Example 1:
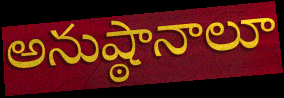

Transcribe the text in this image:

అనుష్ఠానాలూ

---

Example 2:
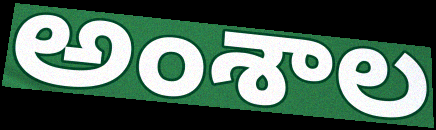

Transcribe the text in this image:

అంశాల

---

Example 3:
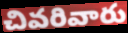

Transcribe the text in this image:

చివరివారు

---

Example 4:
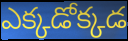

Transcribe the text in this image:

ఎక్కడోక్కడ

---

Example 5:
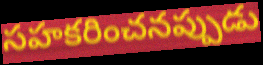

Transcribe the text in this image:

సహకరించనప్పుడు